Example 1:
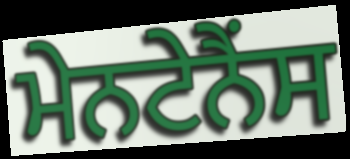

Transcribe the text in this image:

ਮੇਨਟੇਨੈਂਸ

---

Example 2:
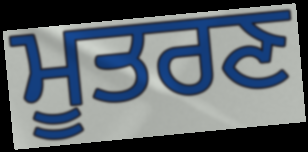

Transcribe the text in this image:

ਮੂਤਰਣ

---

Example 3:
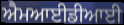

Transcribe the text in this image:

ਐਮਆਈਡੀਆਈ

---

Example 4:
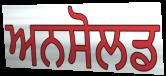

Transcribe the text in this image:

ਅਨਸੋਲਡ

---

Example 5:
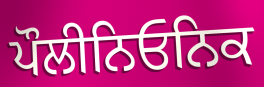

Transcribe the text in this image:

ਪੌਲੀਨਿਓਨਿਕ